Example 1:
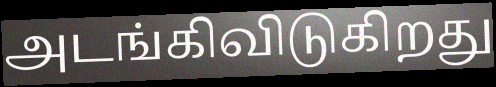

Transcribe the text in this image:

அடங்கிவிடுகிறது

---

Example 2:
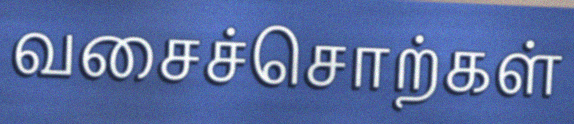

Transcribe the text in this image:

வசைச்சொற்கள்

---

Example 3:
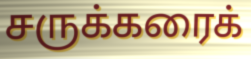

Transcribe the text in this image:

சருக்கரைக்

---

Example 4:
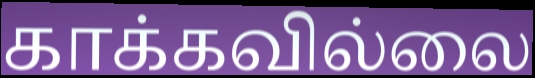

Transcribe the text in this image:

காக்கவில்லை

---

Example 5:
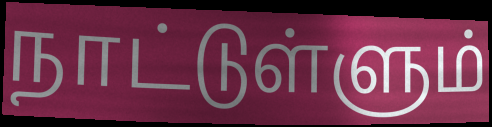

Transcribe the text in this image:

நாட்டுள்ளும்